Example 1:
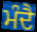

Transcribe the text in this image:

ਮੰਦੈ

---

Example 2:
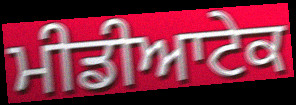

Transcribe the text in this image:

ਮੀਡੀਆਟੇਕ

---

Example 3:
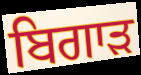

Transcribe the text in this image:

ਬਿਗਾੜ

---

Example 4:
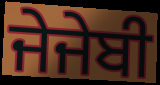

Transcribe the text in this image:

ਜੇਜੇਬੀ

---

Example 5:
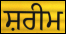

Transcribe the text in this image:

ਸ਼ਰੀਮ